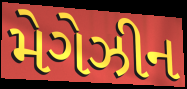
મેગેઝીન